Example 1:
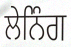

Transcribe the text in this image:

ਲੇਨਿੰਗ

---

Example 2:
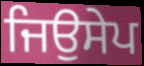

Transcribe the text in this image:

ਜਿਉਸੇਪ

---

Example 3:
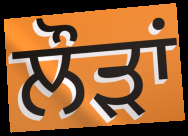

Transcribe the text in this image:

ਲੌੜਾਂ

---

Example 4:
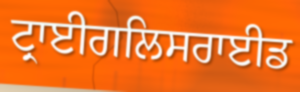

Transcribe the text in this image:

ਟ੍ਰਾਈਗਲਿਸਰਾਈਡ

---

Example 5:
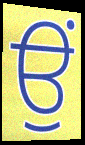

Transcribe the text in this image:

ਉਂ